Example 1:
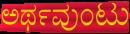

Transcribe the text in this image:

ಅರ್ಥವುಂಟು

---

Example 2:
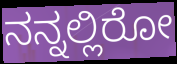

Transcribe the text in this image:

ನನ್ನಲ್ಲಿರೋ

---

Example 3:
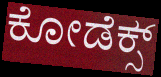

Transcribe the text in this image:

ಕೋಡೆಕ್ಸ್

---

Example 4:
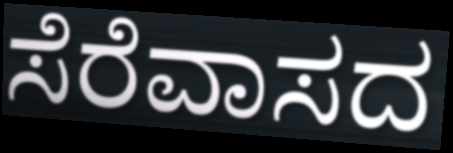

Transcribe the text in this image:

ಸೆರೆವಾಸದ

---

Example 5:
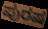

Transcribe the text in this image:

ಪುರಷ